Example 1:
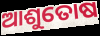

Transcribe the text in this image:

ଆଶୁତୋଷ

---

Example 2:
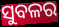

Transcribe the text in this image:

ସୁବଳର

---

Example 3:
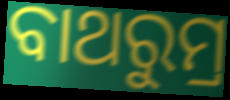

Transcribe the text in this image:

ବାଥରୁମ୍ର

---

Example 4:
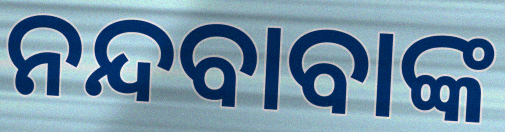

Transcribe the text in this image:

ନନ୍ଦବାବାଙ୍କ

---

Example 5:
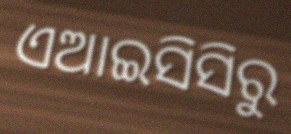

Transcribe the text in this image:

ଏଆଇସିସିରୁ